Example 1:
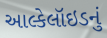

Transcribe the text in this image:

આલ્કેલૉઇડનું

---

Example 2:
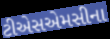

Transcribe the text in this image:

ટીએસએમસીના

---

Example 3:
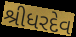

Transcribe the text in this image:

શ્રીધરદેવ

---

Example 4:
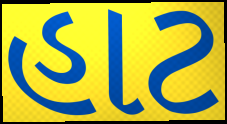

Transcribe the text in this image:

હાટ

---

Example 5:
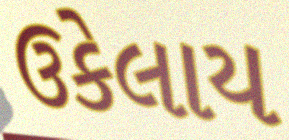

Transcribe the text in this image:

ઉકેલાય